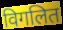
विगलित